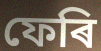
ফেৰি